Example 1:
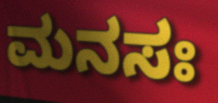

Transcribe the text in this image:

ಮನಸಃ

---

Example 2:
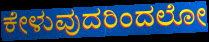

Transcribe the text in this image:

ಕೇಳುವುದರಿಂದಲೋ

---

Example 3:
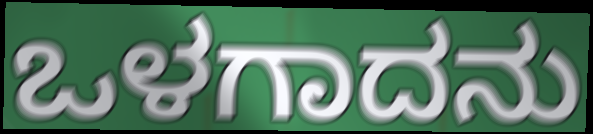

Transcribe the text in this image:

ಒಳಗಾದನು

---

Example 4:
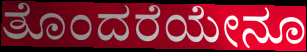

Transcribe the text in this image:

ತೊಂದರೆಯೇನೂ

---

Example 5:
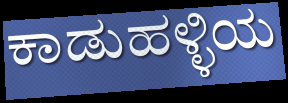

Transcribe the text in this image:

ಕಾಡುಹಳ್ಳಿಯ